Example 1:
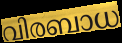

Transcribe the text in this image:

വിരബാധ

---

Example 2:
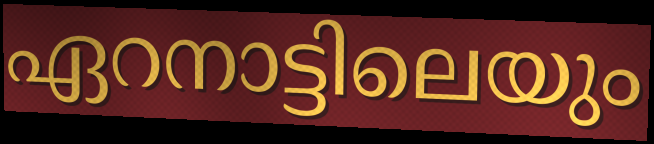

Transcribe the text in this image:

ഏറനാട്ടിലെയും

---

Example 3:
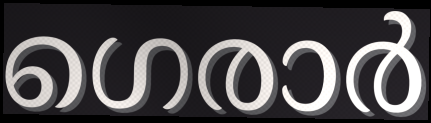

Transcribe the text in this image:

ഗെരാർ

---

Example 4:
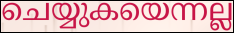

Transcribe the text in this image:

ചെയ്യുകയെന്നല്ല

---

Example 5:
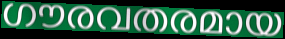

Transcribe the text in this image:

ഗൗരവതരമായ